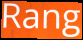
Rang